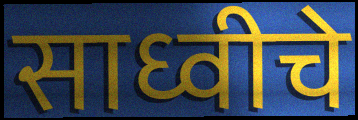
साध्वीचे